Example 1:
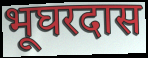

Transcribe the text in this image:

भूघरदास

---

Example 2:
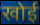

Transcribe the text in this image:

खोई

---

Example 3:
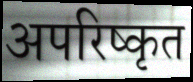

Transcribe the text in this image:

अपरिष्कृत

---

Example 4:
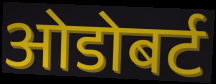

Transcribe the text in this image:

ओडोबर्ट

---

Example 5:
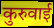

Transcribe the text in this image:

कुरुवाई